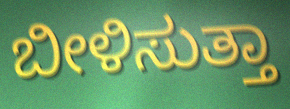
ಬೀಳಿಸುತ್ತಾ